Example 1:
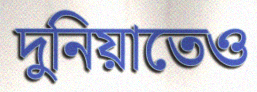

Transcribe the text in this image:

দুনিয়াতেও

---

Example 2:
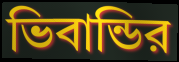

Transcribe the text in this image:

ভিবান্ডির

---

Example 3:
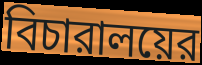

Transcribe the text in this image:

বিচারালয়ের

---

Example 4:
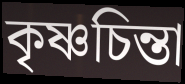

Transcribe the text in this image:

কৃষ্ণচিন্তা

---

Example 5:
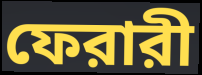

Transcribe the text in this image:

ফেরারী